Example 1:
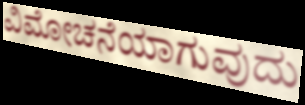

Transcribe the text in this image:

ವಿಮೋಚನೆಯಾಗುವುದು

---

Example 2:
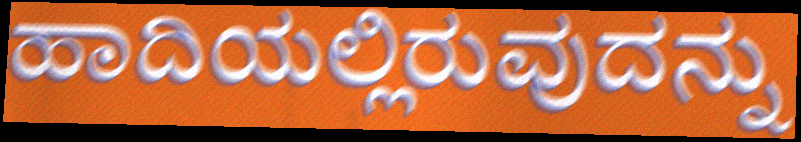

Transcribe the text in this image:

ಹಾದಿಯಲ್ಲಿರುವುದನ್ನು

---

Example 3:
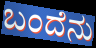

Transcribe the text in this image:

ಬಂದೆನು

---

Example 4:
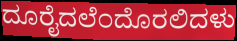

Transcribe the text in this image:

ದೂರೈದಲೆಂದೊರಲಿದಳು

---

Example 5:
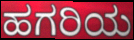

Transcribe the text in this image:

ಹಗರಿಯ